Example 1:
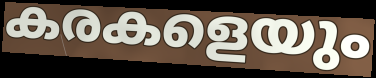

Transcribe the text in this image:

കരകളെയും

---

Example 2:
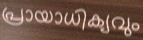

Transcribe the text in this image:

പ്രായാധിക്യവും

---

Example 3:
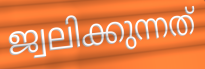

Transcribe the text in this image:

ജ്വലിക്കുന്നത്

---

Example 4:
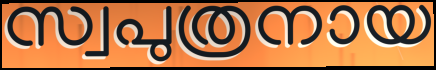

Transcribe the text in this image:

സ്വപുത്രനായ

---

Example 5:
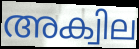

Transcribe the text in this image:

അക്വില